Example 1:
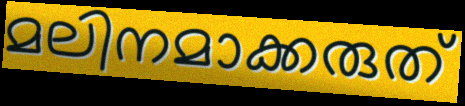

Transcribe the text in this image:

മലിനമാക്കരുത്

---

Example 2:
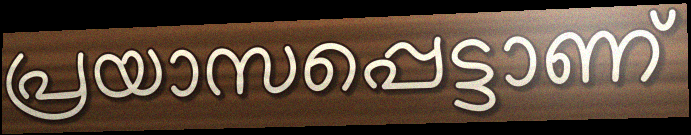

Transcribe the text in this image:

പ്രയാസപ്പെട്ടാണ്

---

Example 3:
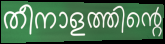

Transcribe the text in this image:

തീനാളത്തിന്റെ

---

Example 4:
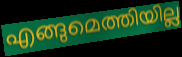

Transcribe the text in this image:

എങ്ങുമെത്തിയില്ല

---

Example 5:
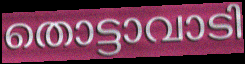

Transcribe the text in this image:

തൊട്ടാവാടി